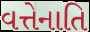
વત્તેનાતિ